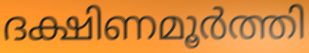
ദക്ഷിണമൂർത്തി